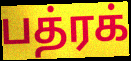
பத்ரக்